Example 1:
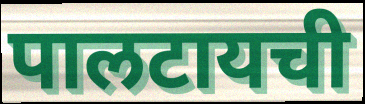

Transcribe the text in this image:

पालटायची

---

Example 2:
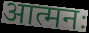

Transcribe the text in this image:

आत्मनः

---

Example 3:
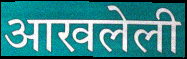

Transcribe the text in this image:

आखलेली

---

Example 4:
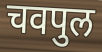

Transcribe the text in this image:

चवपुल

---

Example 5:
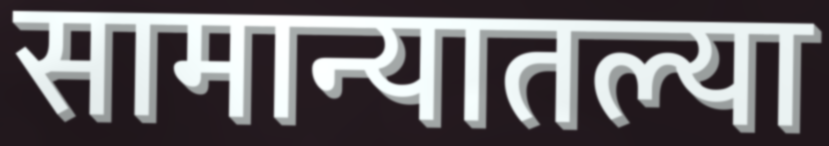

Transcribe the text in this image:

सामान्यातल्या